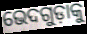
ଭେଦଗୁଡ଼ାକୁ